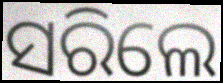
ସରିଲେ